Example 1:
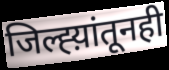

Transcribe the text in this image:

जिल्ह्य़ांतूनही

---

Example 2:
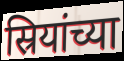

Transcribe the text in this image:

स्रियांच्या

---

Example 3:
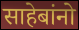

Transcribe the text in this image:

साहेबांनो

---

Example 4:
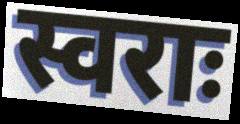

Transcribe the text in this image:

स्वराः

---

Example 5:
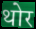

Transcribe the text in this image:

थोर